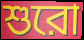
শুরো